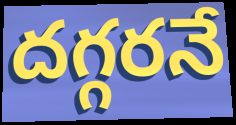
దగ్గరనే